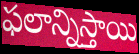
ఫలాన్నిస్తాయి